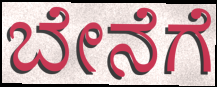
ಬೇನೆಗೆ